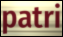
patri